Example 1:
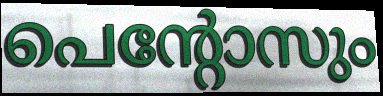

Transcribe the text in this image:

പെന്റോസും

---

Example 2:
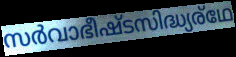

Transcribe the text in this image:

സർവാഭീഷ്ടസിദ്ധ്യര്ഥേ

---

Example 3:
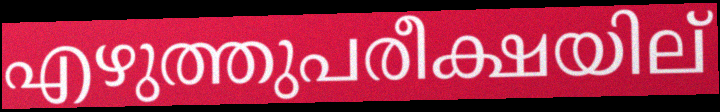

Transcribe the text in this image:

എഴുത്തുപരീക്ഷയില്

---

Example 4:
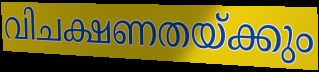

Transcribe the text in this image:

വിചക്ഷണതയ്ക്കും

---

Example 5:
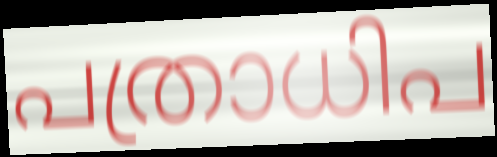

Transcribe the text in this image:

പത്രാധിപ